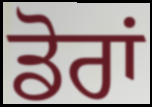
ਡੋਰਾਂ